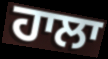
ਹਾਲਾ